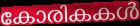
കോരികകൾ